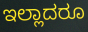
ಇಲ್ಲಾದರೂ